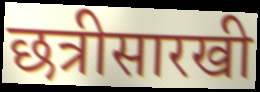
छत्रीसारखी